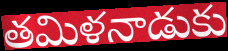
తమిళనాడుకు